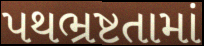
પથભ્રષ્ટતામાં